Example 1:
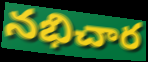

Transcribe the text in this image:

నభిచార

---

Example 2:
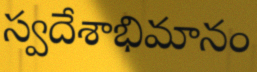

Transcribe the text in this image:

స్వదేశాభిమానం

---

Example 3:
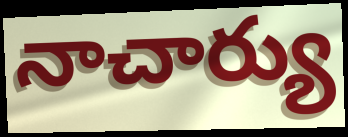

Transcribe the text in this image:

నాచార్యు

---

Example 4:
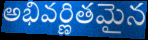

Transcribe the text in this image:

అభివర్ణితమైన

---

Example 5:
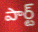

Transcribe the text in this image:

పార్ట్